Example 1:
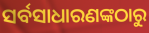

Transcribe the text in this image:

ସର୍ବସାଧାରଣଙ୍କଠାରୁ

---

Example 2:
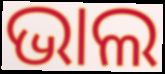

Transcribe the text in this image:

ଭାଲ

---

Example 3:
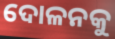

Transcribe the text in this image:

ଦୋଳନକୁ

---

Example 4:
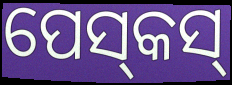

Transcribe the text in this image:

ପେସ୍‌କସ୍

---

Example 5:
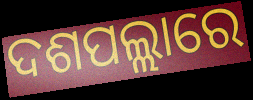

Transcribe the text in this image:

ଦଶପଲ୍ଲାରେ